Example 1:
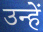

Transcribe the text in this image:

उन्हें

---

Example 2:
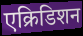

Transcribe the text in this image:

एक्रिडिशन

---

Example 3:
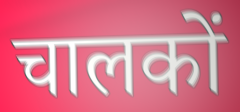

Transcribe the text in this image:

चालकों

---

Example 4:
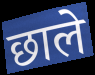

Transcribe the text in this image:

छाले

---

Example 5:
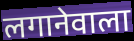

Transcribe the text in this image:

लगानेवाला